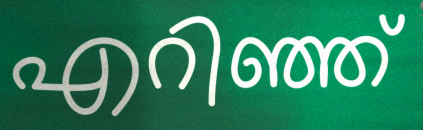
എറിഞ്ഞ്